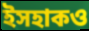
ইসহাকও